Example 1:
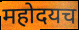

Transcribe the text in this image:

महोदयच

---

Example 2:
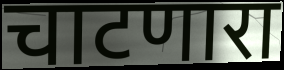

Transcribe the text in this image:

चाटणारा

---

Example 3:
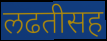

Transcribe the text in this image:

लढतीसह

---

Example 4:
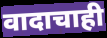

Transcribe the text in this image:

वादाचाही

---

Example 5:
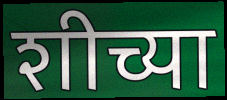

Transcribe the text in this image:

शीच्या